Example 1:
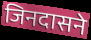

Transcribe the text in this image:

जिनदासने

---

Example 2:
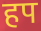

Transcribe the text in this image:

हप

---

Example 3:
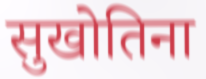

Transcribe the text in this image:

सुखोतिना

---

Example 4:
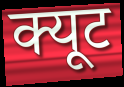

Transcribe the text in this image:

क्यूट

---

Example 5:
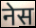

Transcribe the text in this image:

नेस